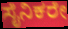
ಸೈನಿಕರೇ